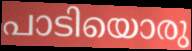
പാടിയൊരു